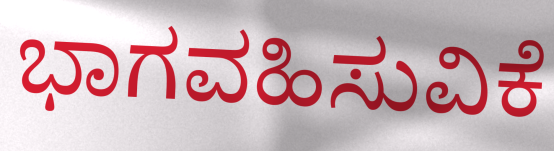
ಭಾಗವಹಿಸುವಿಕೆ